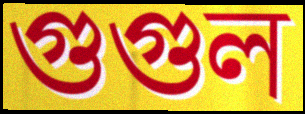
গুগুল